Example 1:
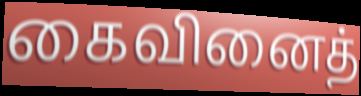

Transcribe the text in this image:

கைவினைத்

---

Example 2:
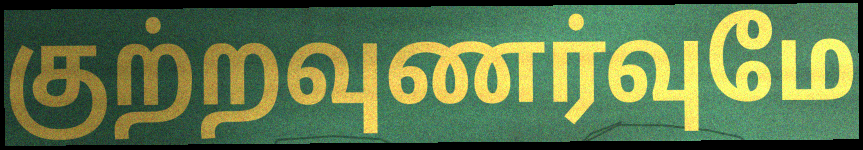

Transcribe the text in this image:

குற்றவுணர்வுமே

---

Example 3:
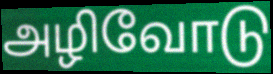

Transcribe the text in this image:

அழிவோடு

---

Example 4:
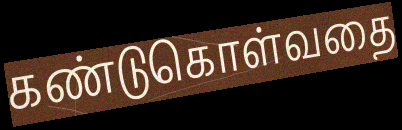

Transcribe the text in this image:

கண்டுகொள்வதை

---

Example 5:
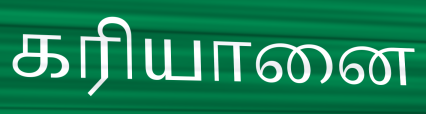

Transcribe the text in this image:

கரியானை